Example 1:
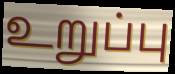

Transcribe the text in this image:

உறுப்பு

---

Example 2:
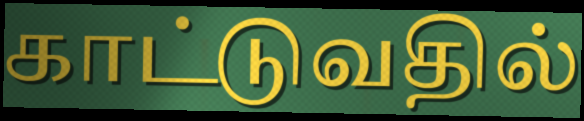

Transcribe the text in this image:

காட்டுவதில்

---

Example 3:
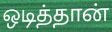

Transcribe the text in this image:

ஒடித்தான்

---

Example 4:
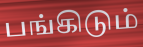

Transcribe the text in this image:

பங்கிடும்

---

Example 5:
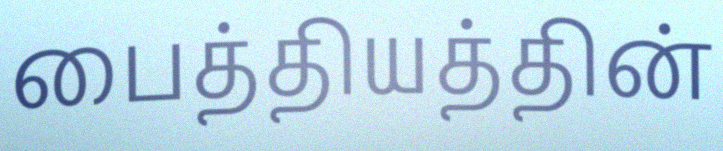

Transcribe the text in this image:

பைத்தியத்தின்